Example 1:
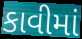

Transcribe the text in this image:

કાવીમાં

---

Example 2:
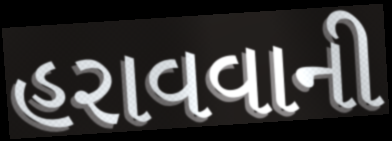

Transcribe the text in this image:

હરાવવાની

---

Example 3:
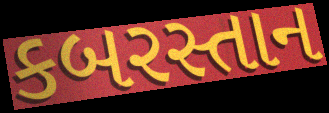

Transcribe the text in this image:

કબરસ્તાન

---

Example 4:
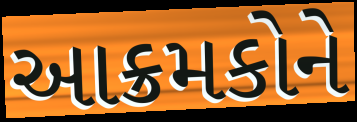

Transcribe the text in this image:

આક્રમકોને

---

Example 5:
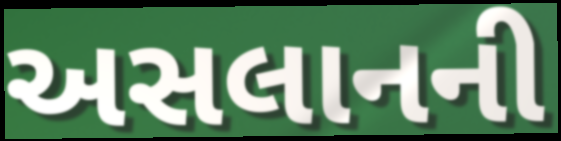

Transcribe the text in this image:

અસલાનની